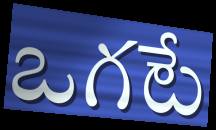
ఒగటే